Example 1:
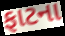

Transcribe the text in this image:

ફાટના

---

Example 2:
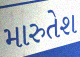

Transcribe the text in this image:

મારુતેશ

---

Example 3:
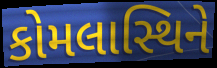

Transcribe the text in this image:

કોમલાસ્થિને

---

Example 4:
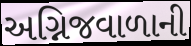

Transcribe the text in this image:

અગ્નિજવાળાની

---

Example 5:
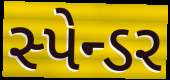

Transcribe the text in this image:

સ્પેન્ડર